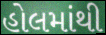
હોલમાંથી